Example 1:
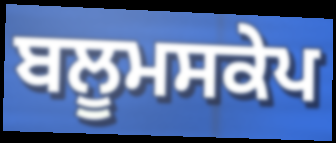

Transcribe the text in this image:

ਬਲੂਮਸਕੇਪ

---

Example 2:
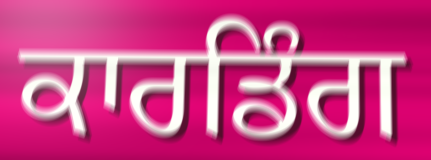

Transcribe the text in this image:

ਕਾਰਡਿੰਗ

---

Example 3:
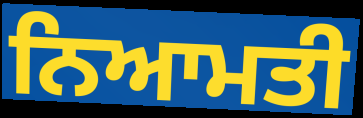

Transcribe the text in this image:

ਨਿਆਮਤੀ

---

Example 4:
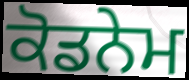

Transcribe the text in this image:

ਕੋਡਨੇਮ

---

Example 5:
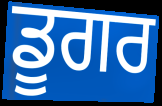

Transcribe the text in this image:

ਡੂਗਰ